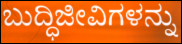
ಬುದ್ಧಿಜೀವಿಗಳನ್ನು